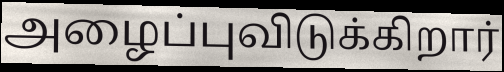
அழைப்புவிடுக்கிறார்